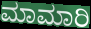
ಮಾಮಾರಿ